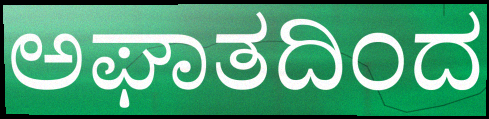
ಅಘಾತದಿಂದ